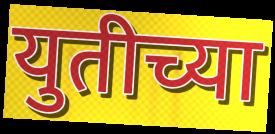
युतीच्या